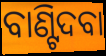
ବାଣ୍ଟିଦବା